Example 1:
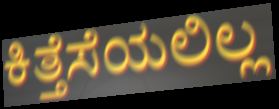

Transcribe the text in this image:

ಕಿತ್ತೆಸೆಯಲಿಲ್ಲ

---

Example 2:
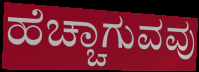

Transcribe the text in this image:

ಹೆಚ್ಚಾಗುವವು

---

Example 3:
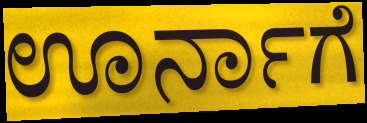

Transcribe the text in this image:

ಊರ್ನಾಗೆ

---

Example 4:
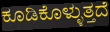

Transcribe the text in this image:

ಕೂಡಿಕೊಳ್ಳುತ್ತದೆ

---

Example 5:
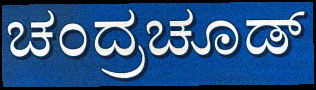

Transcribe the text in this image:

ಚಂದ್ರಚೂಡ್